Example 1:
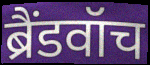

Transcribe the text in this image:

ब्रैंडवॉच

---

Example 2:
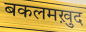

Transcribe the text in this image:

बकलमख़ुद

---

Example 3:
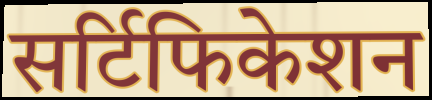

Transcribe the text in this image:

सर्टिफिकेशन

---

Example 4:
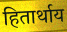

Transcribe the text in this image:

हितार्थाय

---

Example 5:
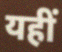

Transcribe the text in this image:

यहीं